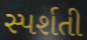
સ્પર્શતી